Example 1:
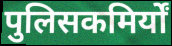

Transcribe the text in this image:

पुलिसकमिर्यों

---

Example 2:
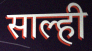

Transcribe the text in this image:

साल्ही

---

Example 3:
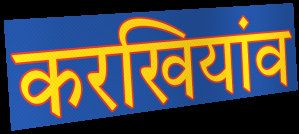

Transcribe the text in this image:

करखियांव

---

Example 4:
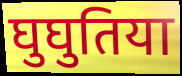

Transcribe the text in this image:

घुघुतिया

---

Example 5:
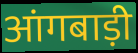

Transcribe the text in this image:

आंगबाड़ी